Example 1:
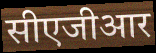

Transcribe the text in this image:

सीएजीआर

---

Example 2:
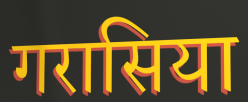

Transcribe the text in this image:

गरासिया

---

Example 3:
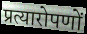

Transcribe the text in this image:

प्रत्यारोपणों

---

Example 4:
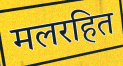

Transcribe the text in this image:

मलरहित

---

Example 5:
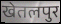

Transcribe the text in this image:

खेतलपुर